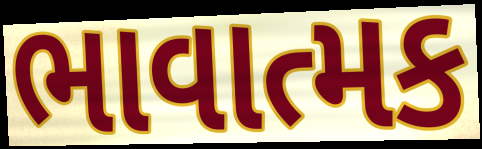
ભાવાત્મક